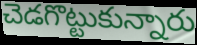
చెడగొట్టుకున్నారు